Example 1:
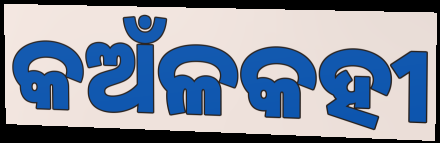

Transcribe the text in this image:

କଅଁଳକହୀ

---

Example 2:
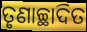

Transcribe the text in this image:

ତୃଣାଚ୍ଛାଦିତ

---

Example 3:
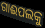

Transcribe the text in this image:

ଗାଈପଲକୁ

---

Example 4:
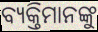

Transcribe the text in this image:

ବ୍ୟକ୍ତିମାନଙ୍କୁ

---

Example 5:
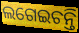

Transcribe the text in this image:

ଲଗେଇଚନ୍ତି